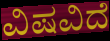
ವಿಷವಿದೆ